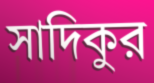
সাদিকুর